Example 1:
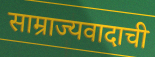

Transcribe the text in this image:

साम्राज्यवादाची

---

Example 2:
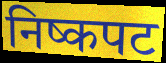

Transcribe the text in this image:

निष्कपट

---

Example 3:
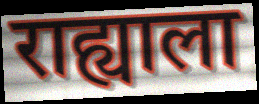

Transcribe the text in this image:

राह्याला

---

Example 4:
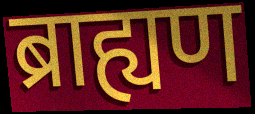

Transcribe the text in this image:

ब्राह्यण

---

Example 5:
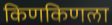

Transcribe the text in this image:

किणकिणला